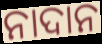
ନାଦାନ